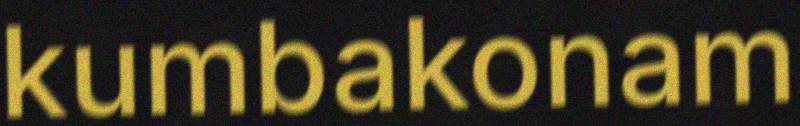
kumbakonam